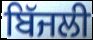
ਬਿੱਜਲੀ